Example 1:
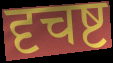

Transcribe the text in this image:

दृचष्ट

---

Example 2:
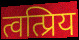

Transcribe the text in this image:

त्वत्प्रिय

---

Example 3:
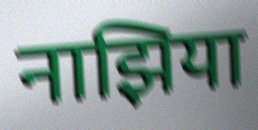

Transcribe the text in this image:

नाझिया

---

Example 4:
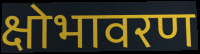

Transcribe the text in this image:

क्षोभावरण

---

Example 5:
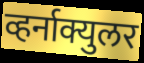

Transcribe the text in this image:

व्हर्नाक्युलर